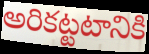
అరికట్టటానికి